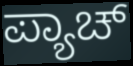
ಪ್ಯಾಚ್